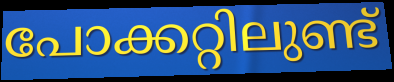
പോക്കറ്റിലുണ്ട്